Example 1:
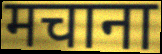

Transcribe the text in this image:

मचाना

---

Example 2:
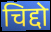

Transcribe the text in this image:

चिद्दो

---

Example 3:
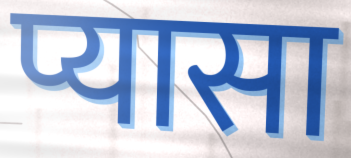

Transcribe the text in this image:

प्यासा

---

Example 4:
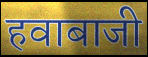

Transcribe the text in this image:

हवाबाजी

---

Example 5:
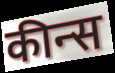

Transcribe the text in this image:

कीन्स